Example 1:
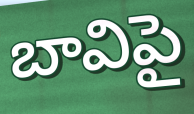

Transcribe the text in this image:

బావిపై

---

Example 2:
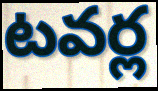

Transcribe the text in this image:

టవర్ల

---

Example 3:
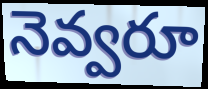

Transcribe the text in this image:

నెవ్వరూ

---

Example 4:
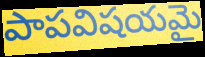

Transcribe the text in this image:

పాపవిషయమై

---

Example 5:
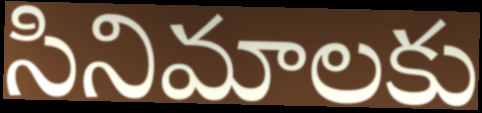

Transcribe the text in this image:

సినిమాలకు